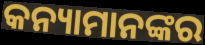
କନ୍ୟାମାନଙ୍କର